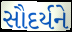
સૌદર્યને